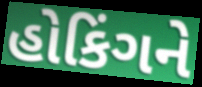
હોકિંગને